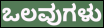
ಒಲವುಗಳು